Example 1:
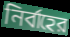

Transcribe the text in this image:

নির্বাহের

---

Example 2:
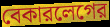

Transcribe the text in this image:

বেকারলেগের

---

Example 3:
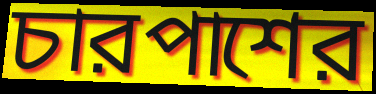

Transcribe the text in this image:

চারপাশের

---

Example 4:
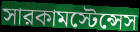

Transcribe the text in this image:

সারকামস্টেন্সেস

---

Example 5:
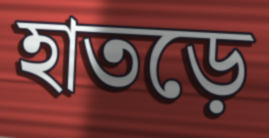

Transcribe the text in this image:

হাতড়ে